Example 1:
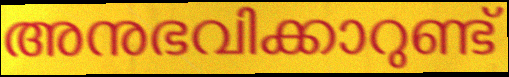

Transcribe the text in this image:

അനുഭവിക്കാറുണ്ട്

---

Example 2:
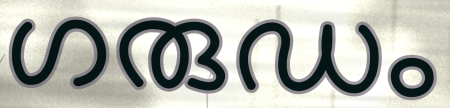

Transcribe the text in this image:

ഗരുഡം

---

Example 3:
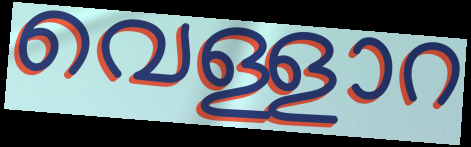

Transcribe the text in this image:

വെള്ളാറ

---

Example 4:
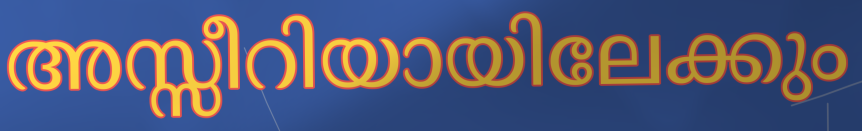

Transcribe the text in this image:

അസ്സീറിയായിലേക്കും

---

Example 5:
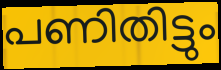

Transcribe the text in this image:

പണിതിട്ടും